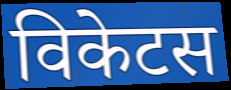
विकेटस